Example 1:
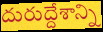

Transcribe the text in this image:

దురుద్దేశాన్ని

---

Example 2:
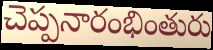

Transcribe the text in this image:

చెప్పనారంభింతురు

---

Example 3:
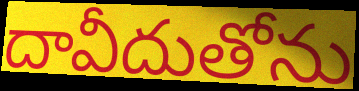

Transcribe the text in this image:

దావీదుతోను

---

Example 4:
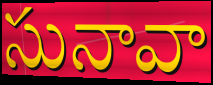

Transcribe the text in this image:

సునావా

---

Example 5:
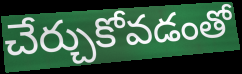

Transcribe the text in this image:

చేర్చుకోవడంతో